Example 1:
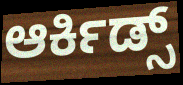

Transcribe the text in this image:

ಆರ್ಕಿಡ್ಸ್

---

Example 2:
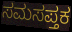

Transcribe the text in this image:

ಸಮಸಪ್ತಕ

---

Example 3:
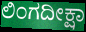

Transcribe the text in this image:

ಲಿಂಗದೀಕ್ಷಾ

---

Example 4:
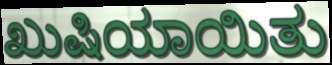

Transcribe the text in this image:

ಖುಷಿಯಾಯಿತು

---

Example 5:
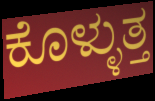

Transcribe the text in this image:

ಕೊಳ್ಳುತ್ತ